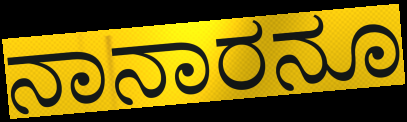
ನಾನಾರನೂ